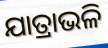
ଯାତ୍ରାଭଳି